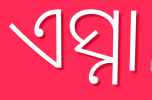
ଏସ୍ନା